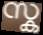
സ്ക